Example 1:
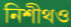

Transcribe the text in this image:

নিশীথও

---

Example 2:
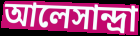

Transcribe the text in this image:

আলেসান্দ্রা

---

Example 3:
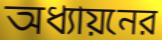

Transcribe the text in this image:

অধ্যায়নের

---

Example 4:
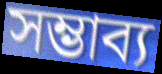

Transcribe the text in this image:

সম্ভাব্য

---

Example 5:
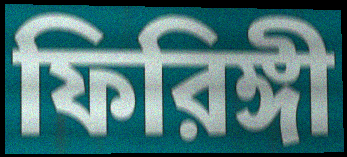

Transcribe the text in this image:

ফিরিঙ্গী